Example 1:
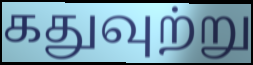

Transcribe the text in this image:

கதுவுற்று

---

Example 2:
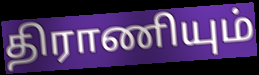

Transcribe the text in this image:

திராணியும்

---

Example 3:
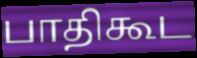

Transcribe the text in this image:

பாதிகூட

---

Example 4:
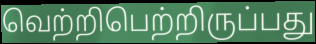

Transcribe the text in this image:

வெற்றிபெற்றிருப்பது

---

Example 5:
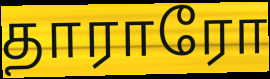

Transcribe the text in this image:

தாராரோ